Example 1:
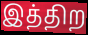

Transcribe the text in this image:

இத்திற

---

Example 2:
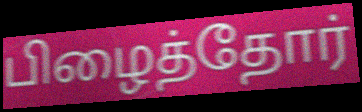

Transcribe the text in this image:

பிழைத்தோர்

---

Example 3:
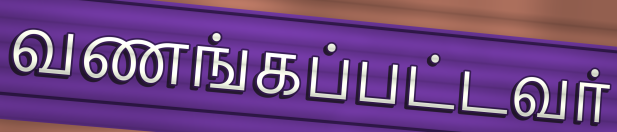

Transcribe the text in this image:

வணங்கப்பட்டவர்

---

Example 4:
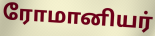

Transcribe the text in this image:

ரோமானியர்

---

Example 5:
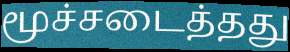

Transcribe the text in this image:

மூச்சடைத்தது